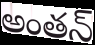
అంతన్